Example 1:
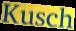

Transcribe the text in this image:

Kusch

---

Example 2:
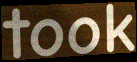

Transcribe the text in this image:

took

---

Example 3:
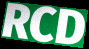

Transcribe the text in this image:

RCD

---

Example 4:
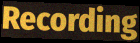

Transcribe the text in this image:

Recording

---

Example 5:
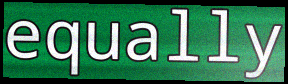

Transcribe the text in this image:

equally